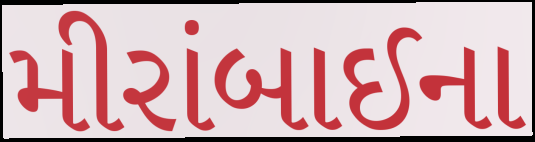
મીરાંબાઈના